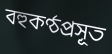
বহুকণ্ঠপ্রসূত